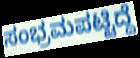
ಸಂಭ್ರಮಪಟ್ಟಿದ್ದೆ